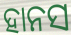
ହାନସ